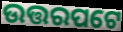
ଉତ୍ତରପଟେ